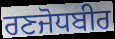
ਰਣਜੋਧਬੀਰ